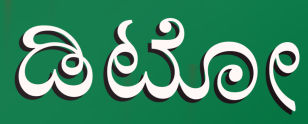
ಡಿಟೋ